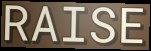
RAISE